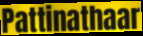
Pattinathaar